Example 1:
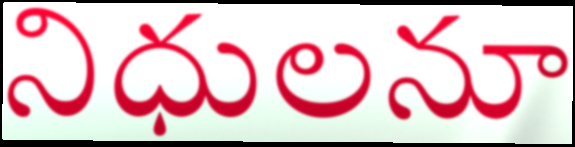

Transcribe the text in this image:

నిధులనూ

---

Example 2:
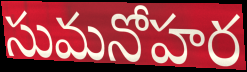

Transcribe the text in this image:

సుమనోహర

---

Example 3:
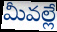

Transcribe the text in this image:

మీవల్లే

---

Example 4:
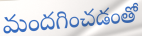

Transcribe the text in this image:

మందగించడంతో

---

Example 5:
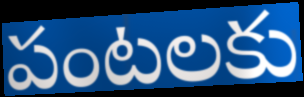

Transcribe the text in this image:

పంటలకు